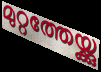
മുറ്റത്തേയ്ക്കു